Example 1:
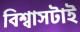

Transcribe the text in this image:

বিশ্বাসটাই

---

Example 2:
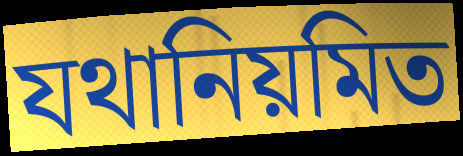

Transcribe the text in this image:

যথানিয়মিত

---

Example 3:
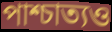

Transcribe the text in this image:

পাশ্চাত্যও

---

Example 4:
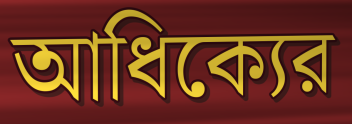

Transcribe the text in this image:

আধিক্যের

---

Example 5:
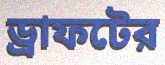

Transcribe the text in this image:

ড্রাফটের